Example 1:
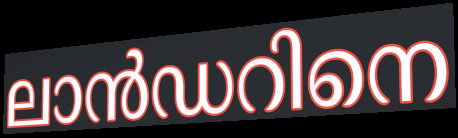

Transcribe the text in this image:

ലാൻഡറിനെ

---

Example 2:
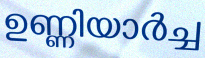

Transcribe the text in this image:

ഉണ്ണിയാർച്ച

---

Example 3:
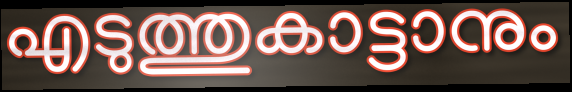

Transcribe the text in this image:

എടുത്തുകാട്ടാനും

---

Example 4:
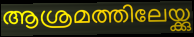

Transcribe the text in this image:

ആശ്രമത്തിലേയ്ക്കു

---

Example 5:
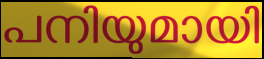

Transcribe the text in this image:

പനിയുമായി